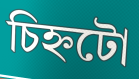
চিহ্নটো